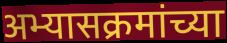
अभ्यासक्रमांच्या